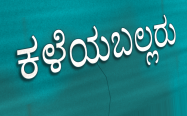
ಕಳೆಯಬಲ್ಲರು